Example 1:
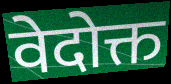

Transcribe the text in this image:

वेदोक्त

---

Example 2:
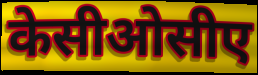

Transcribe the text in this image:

केसीओसीए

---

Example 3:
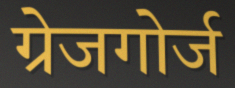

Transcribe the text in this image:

ग्रेजगोर्ज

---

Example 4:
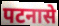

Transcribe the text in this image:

पटनासे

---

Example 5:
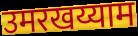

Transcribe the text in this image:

उमरखय्याम